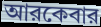
আরকেবার